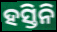
ହସ୍ତିନି